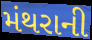
મંથરાની